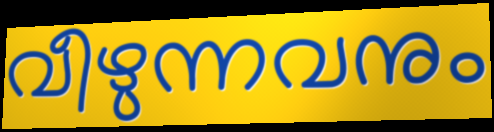
വീഴുന്നവനും